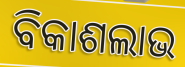
ବିକାଶଲାଭ